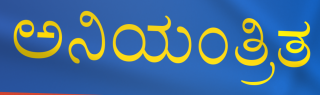
ಅನಿಯಂತ್ರಿತ